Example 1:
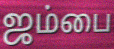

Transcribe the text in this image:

ஜம்பை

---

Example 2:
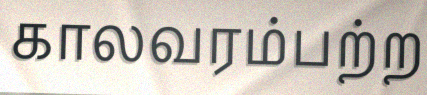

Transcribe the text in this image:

காலவரம்பற்ற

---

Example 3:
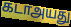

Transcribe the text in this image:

கடாஅயது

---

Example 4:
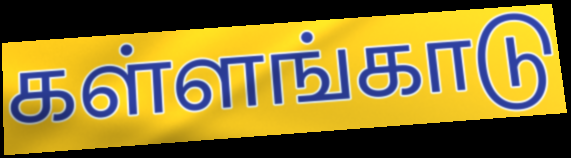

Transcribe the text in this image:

கள்ளங்காடு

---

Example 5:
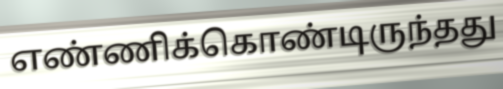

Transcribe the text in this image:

எண்ணிக்கொண்டிருந்தது